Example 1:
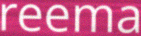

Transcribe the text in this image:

reema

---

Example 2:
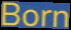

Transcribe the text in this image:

Born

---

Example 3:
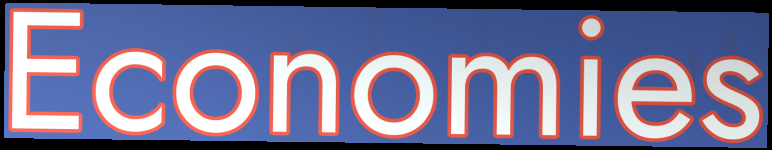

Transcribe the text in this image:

Economies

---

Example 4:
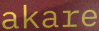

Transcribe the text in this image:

akare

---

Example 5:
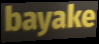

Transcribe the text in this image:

bayake